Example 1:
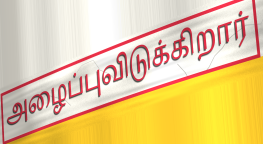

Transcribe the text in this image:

அழைப்புவிடுக்கிறார்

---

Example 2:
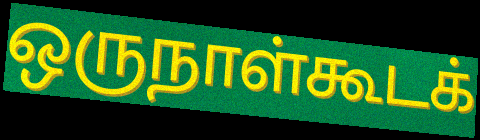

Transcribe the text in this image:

ஒருநாள்கூடக்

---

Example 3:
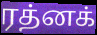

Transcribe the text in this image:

ரத்னக்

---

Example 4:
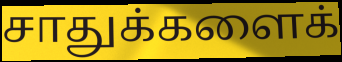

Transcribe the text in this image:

சாதுக்களைக்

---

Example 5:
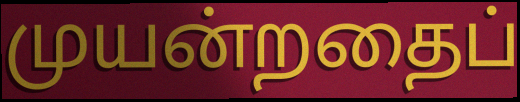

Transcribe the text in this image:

முயன்றதைப்